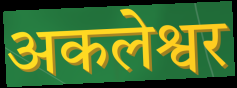
अकलेश्वर